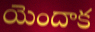
యెందాక